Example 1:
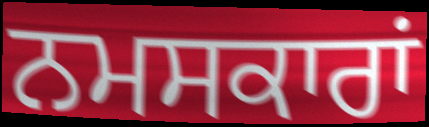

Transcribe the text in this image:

ਨਮਸਕਾਰਾਂ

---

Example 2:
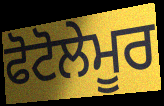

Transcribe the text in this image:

ਫੋਟੋਲੇਮੂਰ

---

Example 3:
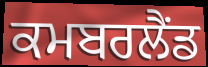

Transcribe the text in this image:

ਕਮਬਰਲੈਂਡ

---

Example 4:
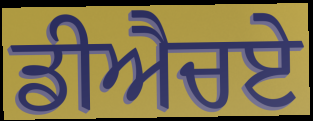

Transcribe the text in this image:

ਡੀਐਚਏ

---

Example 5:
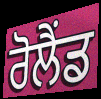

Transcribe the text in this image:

ਰੋਲੈਂਡ